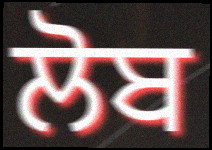
ਲੋਬ